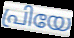
പ്രിയേ